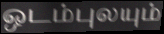
ஒடம்புலயும்